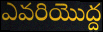
ఎవరియొద్ద